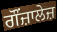
ਗੌਂਜ਼ਾਲੇਜ਼